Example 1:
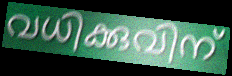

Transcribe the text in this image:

വധിക്കുവിന്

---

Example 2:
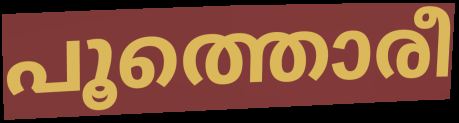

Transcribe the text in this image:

പൂത്തൊരീ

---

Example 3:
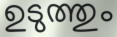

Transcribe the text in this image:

ഉടുത്തും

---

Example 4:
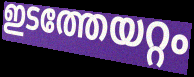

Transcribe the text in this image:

ഇടത്തേയറ്റം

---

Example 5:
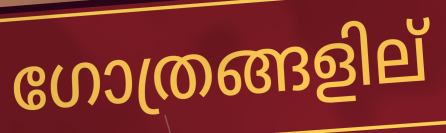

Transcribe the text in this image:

ഗോത്രങ്ങളില്